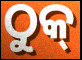
ଠୁକ୍